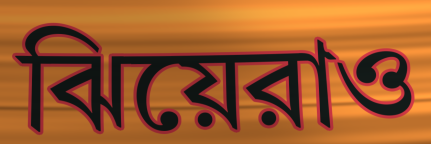
ঝিয়েরাও